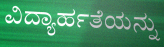
ವಿದ್ಯಾರ್ಹತೆಯನ್ನು